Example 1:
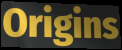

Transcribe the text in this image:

Origins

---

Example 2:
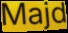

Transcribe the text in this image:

Majd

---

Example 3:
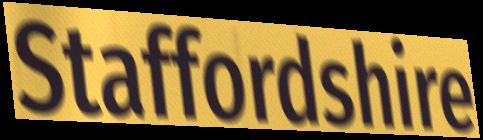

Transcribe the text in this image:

Staffordshire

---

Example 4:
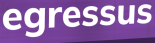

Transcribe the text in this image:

egressus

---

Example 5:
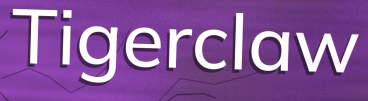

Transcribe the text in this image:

Tigerclaw